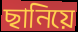
ছানিয়ে